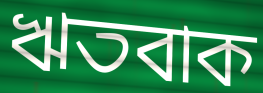
ঋতবাক